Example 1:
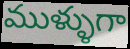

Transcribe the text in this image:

ముళ్ళుగా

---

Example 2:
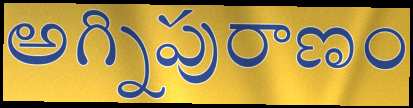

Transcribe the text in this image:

అగ్నిపురాణం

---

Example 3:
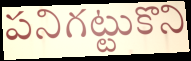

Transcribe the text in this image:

పనిగట్టుకొని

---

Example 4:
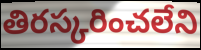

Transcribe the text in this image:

తిరస్కరించలేని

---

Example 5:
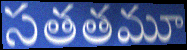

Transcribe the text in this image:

సతతమూ